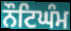
ਨੌਟਿਘੰਮ